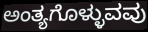
ಅಂತ್ಯಗೊಳ್ಳುವವು